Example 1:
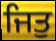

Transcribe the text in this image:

ਜਿਤੁ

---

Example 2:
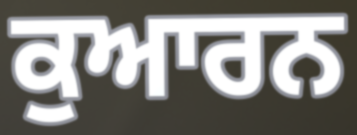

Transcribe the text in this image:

ਕੁਆਰਨ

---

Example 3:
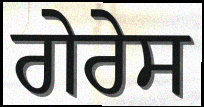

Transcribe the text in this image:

ਗੇਰੇਸ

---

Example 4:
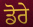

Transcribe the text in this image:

ਡੋਰੇ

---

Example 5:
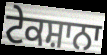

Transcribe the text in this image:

ਟੇਕਸ਼ਾਨਾ